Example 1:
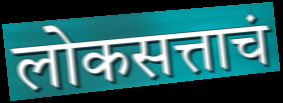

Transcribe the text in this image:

लोकसत्ताचं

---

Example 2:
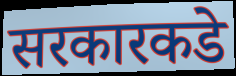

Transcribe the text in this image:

सरकारकडे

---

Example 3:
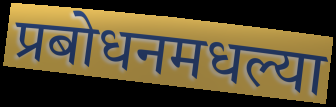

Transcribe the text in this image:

प्रबोधनमधल्या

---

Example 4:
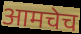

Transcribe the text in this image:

आमचेच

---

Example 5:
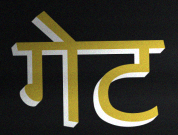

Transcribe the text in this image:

गेट